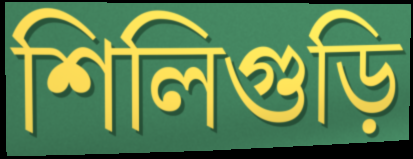
শিলিগুড়ি